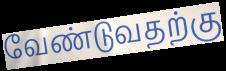
வேண்டுவதற்கு